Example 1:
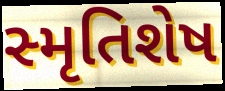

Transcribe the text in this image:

સ્મૃતિશેષ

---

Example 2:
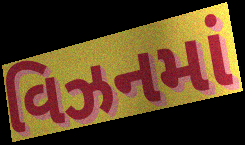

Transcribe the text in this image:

વિઝનમાં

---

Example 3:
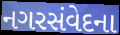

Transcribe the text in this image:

નગરસંવેદના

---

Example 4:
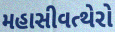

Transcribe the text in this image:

મહાસીવત્થેરો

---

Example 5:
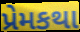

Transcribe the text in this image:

પ્રેમકથા